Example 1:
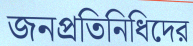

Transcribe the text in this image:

জনপ্রতিনিধিদের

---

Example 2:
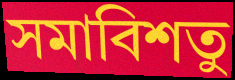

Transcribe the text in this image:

সমাবিশতু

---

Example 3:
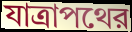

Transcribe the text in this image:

যাত্রাপথের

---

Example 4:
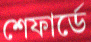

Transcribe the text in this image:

শেফার্ডে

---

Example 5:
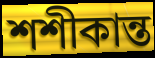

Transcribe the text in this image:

শশীকান্ত